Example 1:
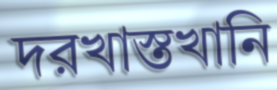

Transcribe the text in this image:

দরখাস্তখানি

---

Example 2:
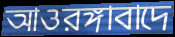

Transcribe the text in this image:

আওরঙ্গাবাদে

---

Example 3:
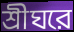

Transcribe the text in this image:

শ্রীঘরে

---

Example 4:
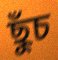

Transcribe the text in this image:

ছুঁচ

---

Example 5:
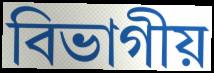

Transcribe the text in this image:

বিভাগীয়